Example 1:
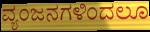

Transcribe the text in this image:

ವ್ಯಂಜನಗಳಿಂದಲೂ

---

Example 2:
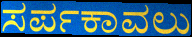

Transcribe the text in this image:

ಸರ್ಪಕಾವಲು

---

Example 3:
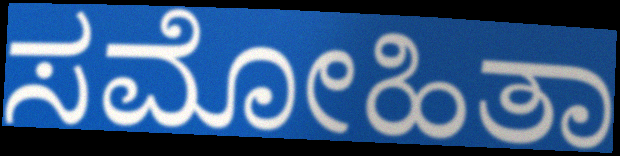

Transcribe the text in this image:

ಸಮೋಹಿತಾ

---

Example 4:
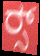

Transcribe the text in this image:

ರ್‍ಸ್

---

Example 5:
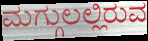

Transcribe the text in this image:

ಮಗ್ಗುಲಲ್ಲಿರುವ